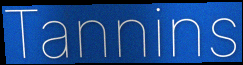
Tannins